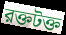
রক্তটক্ত